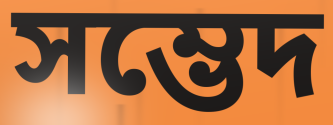
সম্ভেদ